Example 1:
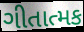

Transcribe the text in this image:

ગીતાત્મક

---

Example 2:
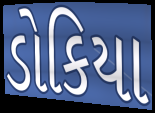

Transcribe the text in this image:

ડોકિયા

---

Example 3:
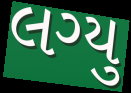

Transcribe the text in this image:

લગ્યુ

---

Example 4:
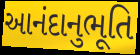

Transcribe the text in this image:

આનંદાનુભૂતિ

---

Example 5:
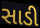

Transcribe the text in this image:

સાડી